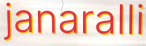
janaralli